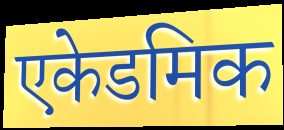
एकेडमिक